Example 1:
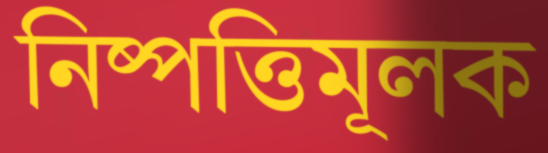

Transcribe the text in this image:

নিষ্পত্তিমূলক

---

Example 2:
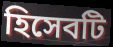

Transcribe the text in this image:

হিসেবটি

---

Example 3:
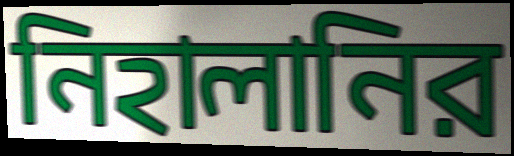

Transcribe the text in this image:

নিহালানির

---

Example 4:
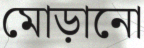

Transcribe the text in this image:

মোড়ানো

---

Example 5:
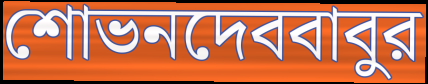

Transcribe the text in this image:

শোভনদেববাবুর